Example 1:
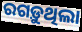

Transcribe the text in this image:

ରଗଡ଼ୁଥିଲା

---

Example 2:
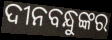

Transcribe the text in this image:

ଦୀନବନ୍ଧୁଙ୍କର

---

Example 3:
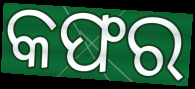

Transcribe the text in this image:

କଫର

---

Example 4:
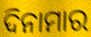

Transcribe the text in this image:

ଦିନାମାର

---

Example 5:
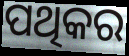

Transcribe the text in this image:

ପଥିକର